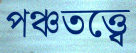
পঞ্চতত্ত্বে